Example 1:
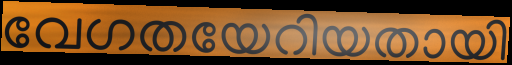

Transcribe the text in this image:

വേഗതയേറിയതായി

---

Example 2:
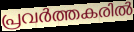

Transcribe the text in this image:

പ്രവർത്തകരിൽ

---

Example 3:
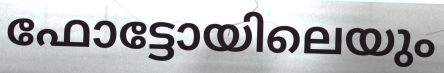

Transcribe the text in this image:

ഫോട്ടോയിലെയും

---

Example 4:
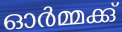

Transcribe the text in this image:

ഓർമ്മക്കു്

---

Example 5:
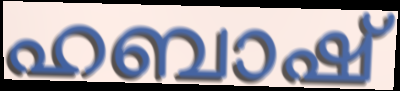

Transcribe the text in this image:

ഹബാഷ്